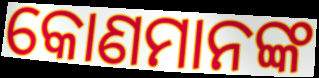
କୋଣମାନଙ୍କ